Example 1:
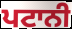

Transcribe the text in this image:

ਪਟਾਨੀ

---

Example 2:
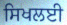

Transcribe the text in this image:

ਸਿਖਲਈ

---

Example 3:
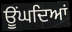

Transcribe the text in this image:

ਊਂਘਦਿਆਂ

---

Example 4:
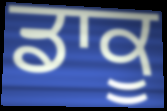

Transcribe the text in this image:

ਡਾਕੂ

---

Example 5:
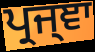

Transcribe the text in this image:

ਪ੍ਰਜ੍ਞਾ